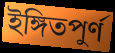
ইঙ্গিতপুর্ণ